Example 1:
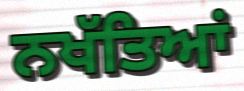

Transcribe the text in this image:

ਨਖੱਤਿਆਂ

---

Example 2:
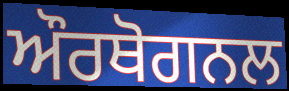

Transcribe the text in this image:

ਔਰਥੋਗਨਲ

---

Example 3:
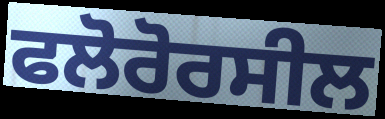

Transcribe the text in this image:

ਫਲੋਰੋਰਸੀਲ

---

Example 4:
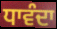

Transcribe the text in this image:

ਧਾਵੰਦਾ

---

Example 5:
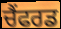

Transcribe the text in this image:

ਚੈਂਫਰਡ